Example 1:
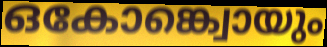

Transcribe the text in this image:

ഒകോങ്ക്വൊയും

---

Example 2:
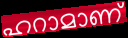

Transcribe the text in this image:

ഹറാമാണ്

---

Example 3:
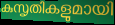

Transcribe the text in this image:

കുസൃതികളുമായി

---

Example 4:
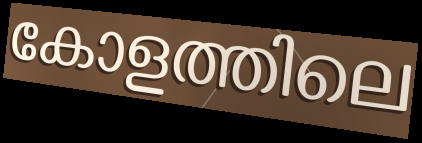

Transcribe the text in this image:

കോളത്തിലെ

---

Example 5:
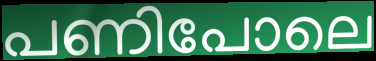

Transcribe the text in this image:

പണിപോലെ